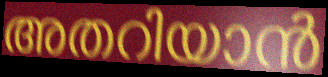
അതറിയാൻ